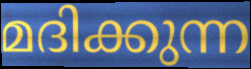
മദിക്കുന്ന